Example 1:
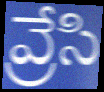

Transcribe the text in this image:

వ్రేసి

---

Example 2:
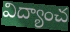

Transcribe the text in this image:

విద్యాంచ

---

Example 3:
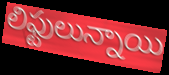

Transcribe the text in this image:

లిఫ్టులున్నాయి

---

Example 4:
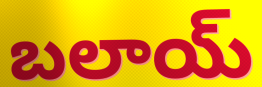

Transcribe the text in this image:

బలాయ్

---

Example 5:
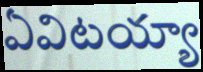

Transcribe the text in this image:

ఏవిటయ్యా